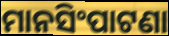
ମାନସିଂପାଟଣା